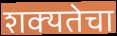
शक्‍यतेचा